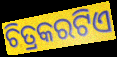
ଚିତ୍ରକରଟିଏ